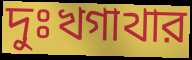
দুঃখগাথার